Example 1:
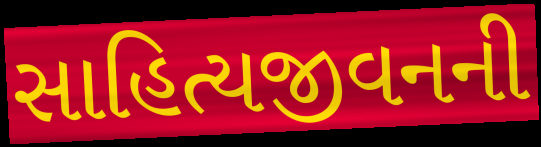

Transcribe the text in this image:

સાહિત્યજીવનની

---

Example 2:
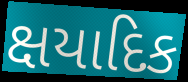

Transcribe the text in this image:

ક્ષયાદિક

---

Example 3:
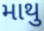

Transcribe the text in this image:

માથુ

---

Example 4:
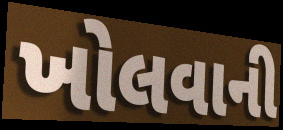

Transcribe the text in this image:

ખોલવાની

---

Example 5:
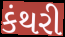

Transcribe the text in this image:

કંથરી